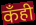
कँही